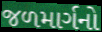
જળમાર્ગનો